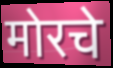
मोरचे